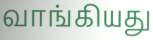
வாங்கியது